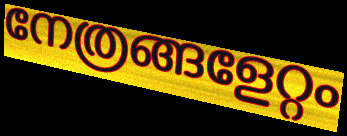
നേത്രങ്ങളേറ്റം